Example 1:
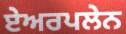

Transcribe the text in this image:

ਏਅਰਪਲੇਨ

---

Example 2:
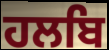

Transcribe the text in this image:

ਹਲਬਿ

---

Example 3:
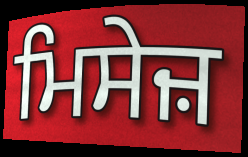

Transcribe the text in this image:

ਮਿਸੇਜ਼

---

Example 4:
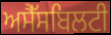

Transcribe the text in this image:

ਅਸੈੱਸਬਿਲਟੀ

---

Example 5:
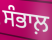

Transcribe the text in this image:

ਸੰਭਾਲ਼